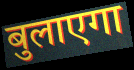
बुलाएगा